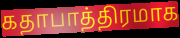
கதாபாத்திரமாக